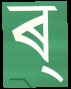
ৰ্